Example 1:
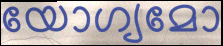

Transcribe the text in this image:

യോഗ്യമോ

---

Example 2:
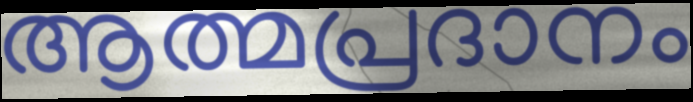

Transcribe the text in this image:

ആത്മപ്രദാനം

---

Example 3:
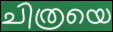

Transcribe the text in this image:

ചിത്രയെ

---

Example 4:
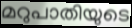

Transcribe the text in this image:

മറുപാതിയുടെ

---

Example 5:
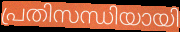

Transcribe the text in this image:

പ്രതിസന്ധിയായി